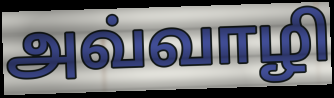
அவ்வாழி